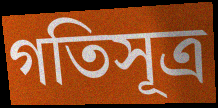
গতিসূত্র